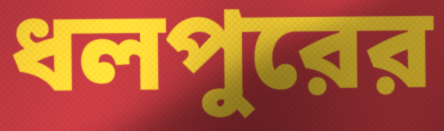
ধলপুরের